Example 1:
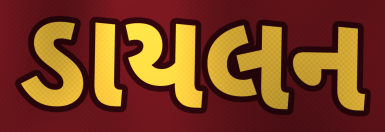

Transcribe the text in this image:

ડાયલન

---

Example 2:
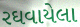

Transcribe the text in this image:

રઘવાયેલા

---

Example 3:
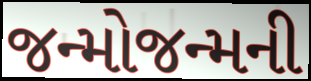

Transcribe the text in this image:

જન્મોજન્મની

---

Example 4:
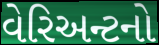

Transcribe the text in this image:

વેરિઅન્ટનો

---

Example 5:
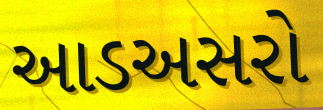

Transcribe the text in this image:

આડઅસરો